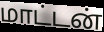
மாட்டன்